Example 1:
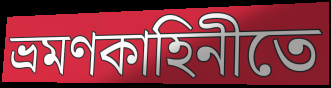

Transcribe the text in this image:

ভ্রমণকাহিনীতে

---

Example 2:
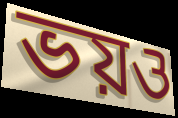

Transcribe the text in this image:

ভয়ও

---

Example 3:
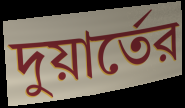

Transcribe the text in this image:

দুয়ার্তের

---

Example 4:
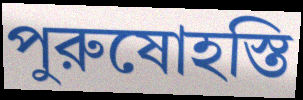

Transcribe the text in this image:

পুরুষোহস্তি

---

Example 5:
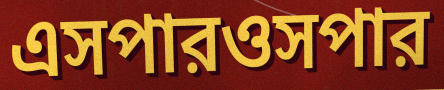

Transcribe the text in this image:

এসপারওসপার